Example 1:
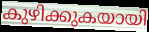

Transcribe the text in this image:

കുഴിക്കുകയായി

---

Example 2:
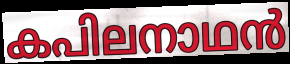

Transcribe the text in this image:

കപിലനാഥൻ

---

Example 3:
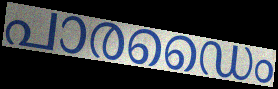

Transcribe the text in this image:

പാരഡൈം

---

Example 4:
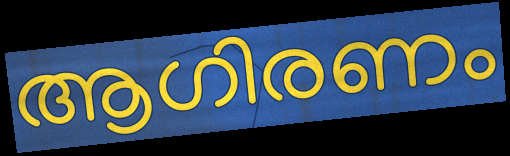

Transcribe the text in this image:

ആഗിരണം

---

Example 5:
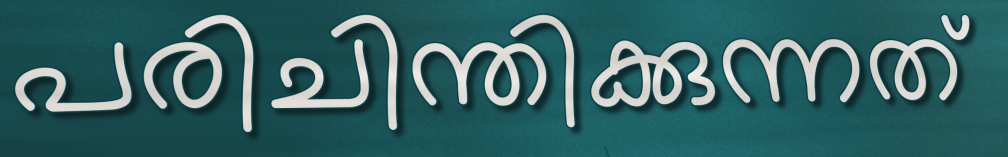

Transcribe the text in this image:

പരിചിന്തിക്കുന്നത്